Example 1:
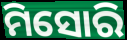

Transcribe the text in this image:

ମିସୋରି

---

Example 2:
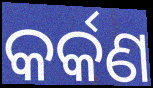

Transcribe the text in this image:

କର୍କଣ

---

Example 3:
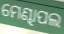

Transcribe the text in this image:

ମେଣ୍ଢାପଲ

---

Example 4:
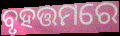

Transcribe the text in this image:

ବୃହତ୍ତମରେ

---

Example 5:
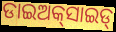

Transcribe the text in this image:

ଡାଇଅକ୍‌ସାଇଡ୍